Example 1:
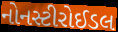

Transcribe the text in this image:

નોનસ્ટીરોઈડલ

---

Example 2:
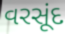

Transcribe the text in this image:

વરસૂંદ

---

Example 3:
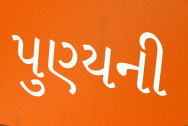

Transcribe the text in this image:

પુણ્યની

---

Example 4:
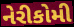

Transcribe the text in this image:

નેરીકોમી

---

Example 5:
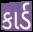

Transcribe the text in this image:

કાર્ડ